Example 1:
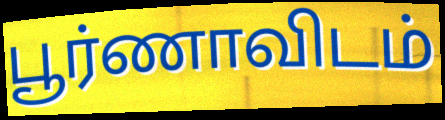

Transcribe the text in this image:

பூர்ணாவிடம்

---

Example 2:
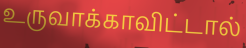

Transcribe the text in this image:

உருவாக்காவிட்டால்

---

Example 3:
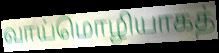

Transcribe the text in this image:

வாய்மொழியாகத்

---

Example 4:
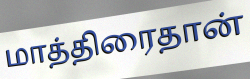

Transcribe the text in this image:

மாத்திரைதான்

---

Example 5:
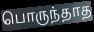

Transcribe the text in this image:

பொருந்தாத